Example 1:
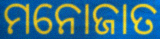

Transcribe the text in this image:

ମନୋଜାତ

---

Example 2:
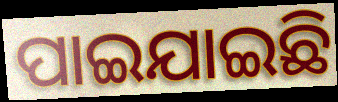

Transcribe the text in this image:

ପାଇଯାଇଛି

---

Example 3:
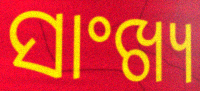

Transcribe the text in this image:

ସାଂଖ୍ଯ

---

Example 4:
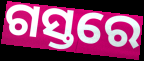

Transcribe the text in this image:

ଗସ୍ତରେ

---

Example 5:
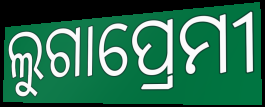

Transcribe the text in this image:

ଲୁଗାପ୍ରେମୀ